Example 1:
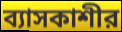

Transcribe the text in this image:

ব্যাসকাশীর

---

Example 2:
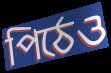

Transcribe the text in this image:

পিঠেও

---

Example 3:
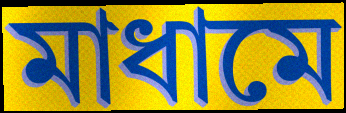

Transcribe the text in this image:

মাধামে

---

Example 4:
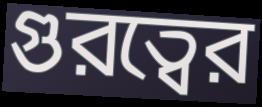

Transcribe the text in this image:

গুরত্বের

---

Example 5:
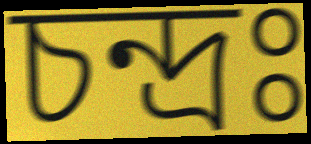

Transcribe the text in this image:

চন্দ্রঃ